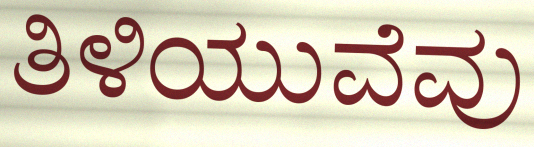
ತಿಳಿಯುವೆವು